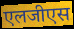
एलजीएस